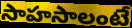
సాహసాలంటే